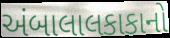
અંબાલાલકાકાનો